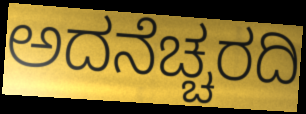
ಅದನೆಚ್ಚರದಿ